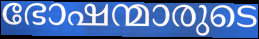
ഭോഷന്മാരുടെ